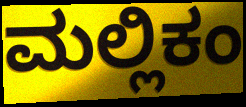
ಮಲ್ಲಿಕಂ